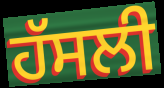
ਹੱਸਲੀ